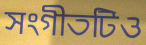
সংগীতটিও